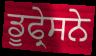
ਡੂਫ੍ਰੇਸਨੇ